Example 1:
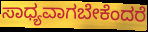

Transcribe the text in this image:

ಸಾಧ್ಯವಾಗಬೇಕೆಂದರೆ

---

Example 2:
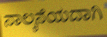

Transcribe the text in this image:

ನಾಲ್ಕನೆಯದಾಗಿ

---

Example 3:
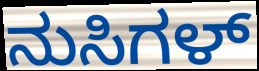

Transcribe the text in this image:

ನುಸಿಗಳ್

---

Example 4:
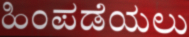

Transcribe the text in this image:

ಹಿಂಪಡೆಯಲು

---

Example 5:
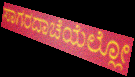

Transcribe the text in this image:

ಸಾಗರದಾಚೆಯೆಲ್ಲೋ